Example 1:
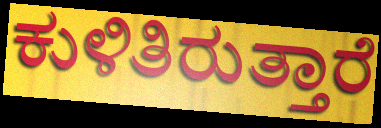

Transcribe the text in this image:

ಕುಳಿತಿರುತ್ತಾರೆ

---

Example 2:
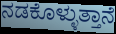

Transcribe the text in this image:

ನಡಕೊಳ್ಳುತ್ತಾನೆ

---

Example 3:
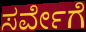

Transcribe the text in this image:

ಸರ್ವೇಗೆ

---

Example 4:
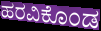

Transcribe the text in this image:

ಹರವಿಕೊಂಡ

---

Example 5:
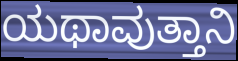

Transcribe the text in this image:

ಯಥಾವುತ್ತಾನಿ